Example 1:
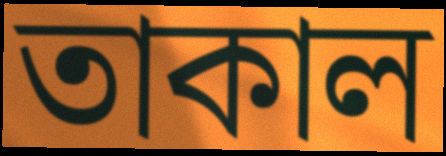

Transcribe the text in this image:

তাকাল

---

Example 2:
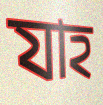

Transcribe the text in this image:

যাহ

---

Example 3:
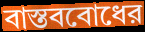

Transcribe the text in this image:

বাস্তববোধের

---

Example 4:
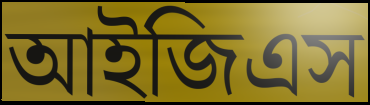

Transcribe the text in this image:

আইজিএস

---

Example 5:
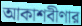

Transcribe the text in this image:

আকাশবীণার